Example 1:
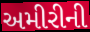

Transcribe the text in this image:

અમીરીની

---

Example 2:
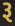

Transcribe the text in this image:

રૂ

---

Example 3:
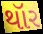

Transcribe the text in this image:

થૉર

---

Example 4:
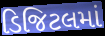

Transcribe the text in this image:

ડિજિટલમાં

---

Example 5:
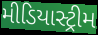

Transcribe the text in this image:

મીડિયાસ્ટ્રીમ